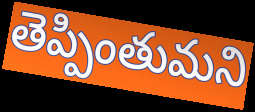
తెప్పింతుమని